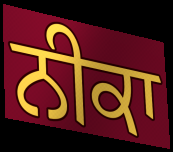
ਨੀਕਾ